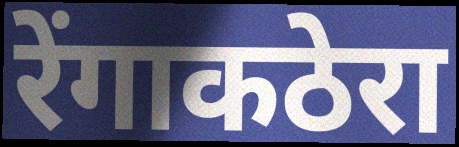
रेंगाकठेरा